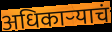
अधिकाऱ्याचं